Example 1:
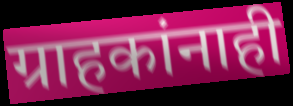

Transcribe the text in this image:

ग्राहकांनाही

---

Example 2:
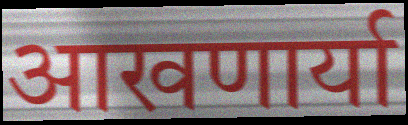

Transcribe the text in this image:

आखणार्या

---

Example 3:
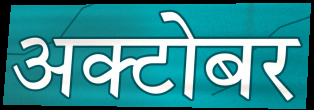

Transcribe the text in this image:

अक्टोबर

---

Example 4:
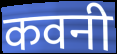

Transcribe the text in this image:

कवनी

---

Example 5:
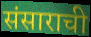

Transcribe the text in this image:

संसाराची